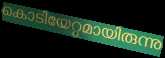
കൊടിയേറ്റമായിരുന്നു